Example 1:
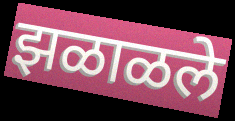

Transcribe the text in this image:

झळाळले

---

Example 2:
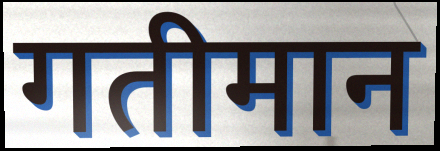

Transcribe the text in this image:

गतीमान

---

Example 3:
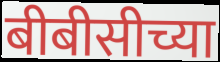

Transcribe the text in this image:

बीबीसीच्या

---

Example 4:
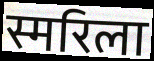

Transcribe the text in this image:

स्मरिला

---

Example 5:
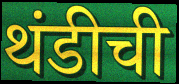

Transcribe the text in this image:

थंडीची